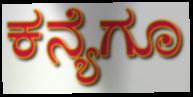
ಕನ್ಯೆಗೂ